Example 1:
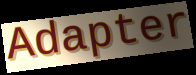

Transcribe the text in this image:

Adapter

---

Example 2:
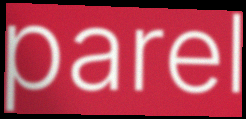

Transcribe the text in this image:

parel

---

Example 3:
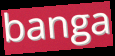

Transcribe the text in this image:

banga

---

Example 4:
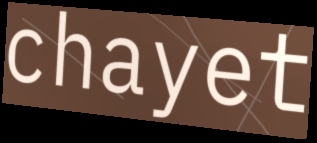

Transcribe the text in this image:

chayet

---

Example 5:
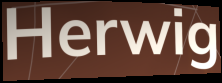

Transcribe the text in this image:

Herwig